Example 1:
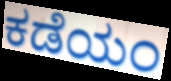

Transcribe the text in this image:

ಕಡೆಯಂ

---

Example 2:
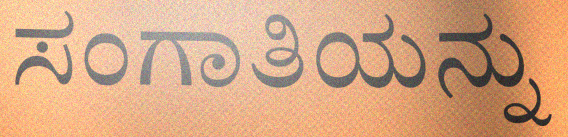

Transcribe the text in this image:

ಸಂಗಾತಿಯನ್ನು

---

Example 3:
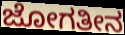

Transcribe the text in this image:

ಜೋಗತೀನ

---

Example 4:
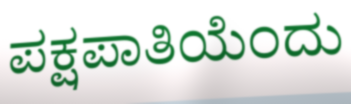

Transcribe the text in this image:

ಪಕ್ಷಪಾತಿಯೆಂದು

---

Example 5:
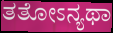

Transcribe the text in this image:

ತತೋಽನ್ಯಥಾ